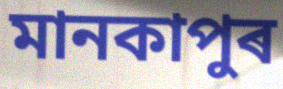
মানকাপুৰ